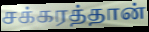
சக்கரத்தான்